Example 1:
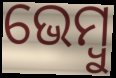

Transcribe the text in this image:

ଭେମ୍ବୁ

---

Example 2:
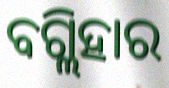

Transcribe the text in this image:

ବଗ୍ଲିହାର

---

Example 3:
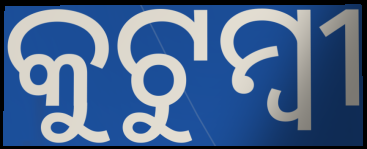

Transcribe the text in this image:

କୁଟୁମ୍ବୀ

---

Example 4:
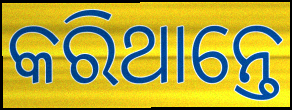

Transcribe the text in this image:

କରିଥାନ୍ତେ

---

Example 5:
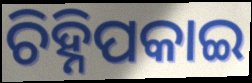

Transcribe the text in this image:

ଚିହ୍ନିପକାଇ